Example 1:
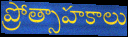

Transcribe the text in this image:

ప్రోత్సాహకాలు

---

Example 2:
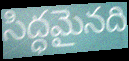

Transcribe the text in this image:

సిద్ధమైనది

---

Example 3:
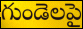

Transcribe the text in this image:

గుండెలపై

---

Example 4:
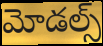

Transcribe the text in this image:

మోడల్స్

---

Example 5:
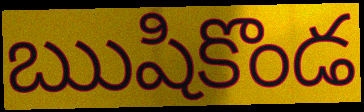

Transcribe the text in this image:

ఋషికొండ